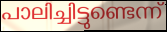
പാലിച്ചിട്ടുണ്ടെന്ന്